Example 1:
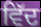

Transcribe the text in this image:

ਵਿੱਦ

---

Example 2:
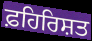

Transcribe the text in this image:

ਫ਼ਹਿਰਿਸ਼ਤ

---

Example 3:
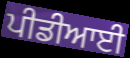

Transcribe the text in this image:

ਪੀਡੀਆਈ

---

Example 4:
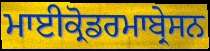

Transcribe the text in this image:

ਮਾਈਕ੍ਰੋਡਰਮਾਬ੍ਰੇਸਨ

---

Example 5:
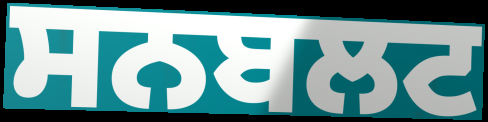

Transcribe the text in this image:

ਸਨਬਲਟ